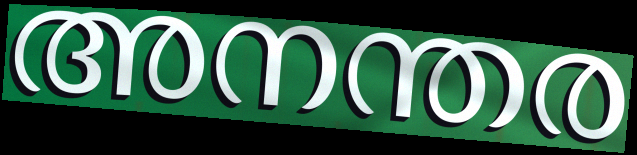
അനന്തര